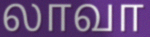
லாவா